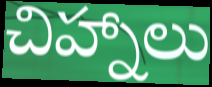
చిహ్నాలు